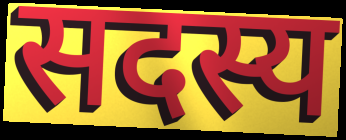
सदस्य